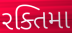
રક્તિમા